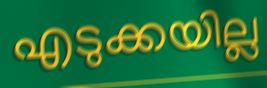
എടുക്കയില്ല